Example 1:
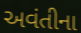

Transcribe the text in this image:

અવંતીના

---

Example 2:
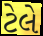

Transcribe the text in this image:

ટેલે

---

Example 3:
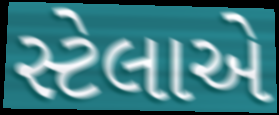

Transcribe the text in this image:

સ્ટેલાએ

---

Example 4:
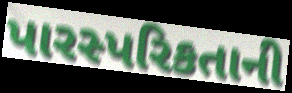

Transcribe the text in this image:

પારસ્પરિકતાની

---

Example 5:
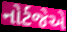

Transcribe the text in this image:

નોર્ટજેએ